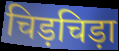
चिड़चिड़ा